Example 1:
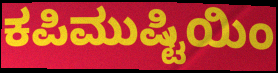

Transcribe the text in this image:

ಕಪಿಮುಷ್ಟಿಯಿಂ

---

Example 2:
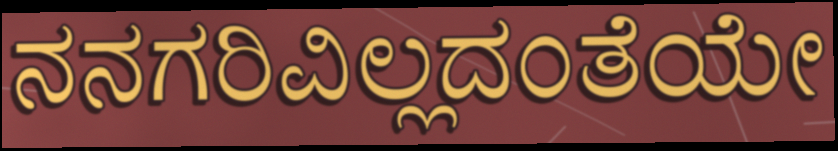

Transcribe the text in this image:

ನನಗರಿವಿಲ್ಲದಂತೆಯೇ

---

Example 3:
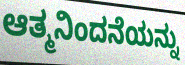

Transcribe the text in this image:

ಆತ್ಮನಿಂದನೆಯನ್ನು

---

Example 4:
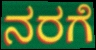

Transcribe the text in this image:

ನರಗೆ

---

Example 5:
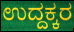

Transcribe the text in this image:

ಉದ್ದಕ್ಕರ